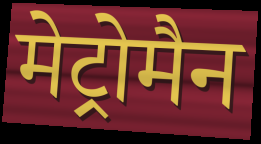
मेट्रोमैन